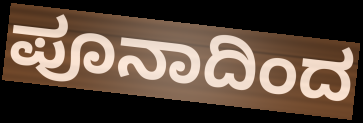
ಪೂನಾದಿಂದ